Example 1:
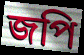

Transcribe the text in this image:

জপি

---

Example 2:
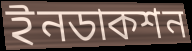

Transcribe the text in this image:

ইনডাকশন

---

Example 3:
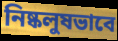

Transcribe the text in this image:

নিষ্কলুষভাবে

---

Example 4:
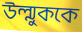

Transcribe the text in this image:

উল্মুককে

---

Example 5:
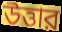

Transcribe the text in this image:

উত্তার